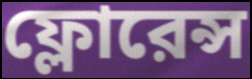
ফ্লোরেন্স